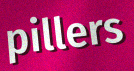
pillers